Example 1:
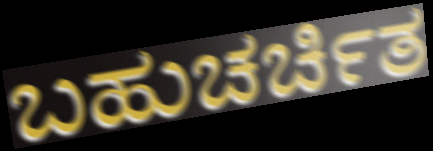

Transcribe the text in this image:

ಬಹುಚರ್ಚಿತ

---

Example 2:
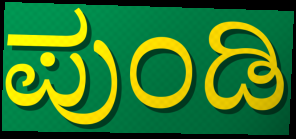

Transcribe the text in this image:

ಪುಂಡಿ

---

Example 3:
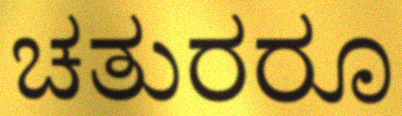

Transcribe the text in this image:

ಚತುರರೂ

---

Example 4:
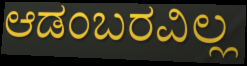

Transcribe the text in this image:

ಆಡಂಬರವಿಲ್ಲ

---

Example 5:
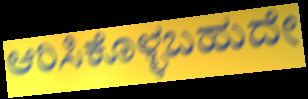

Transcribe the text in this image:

ಆರಿಸಿಕೊಳ್ಳಬಹುದೇ